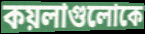
কয়লাগুলোকে